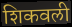
शिकवली